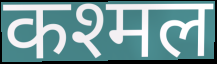
कश्मल